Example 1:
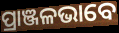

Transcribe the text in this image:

ପ୍ରାଞ୍ଜଳଭାବେ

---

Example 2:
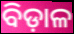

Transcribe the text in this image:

ବିଡ଼ାଳ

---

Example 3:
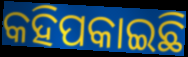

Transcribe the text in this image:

କହିପକାଇଛି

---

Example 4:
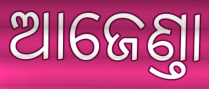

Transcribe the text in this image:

ଆଜେଣ୍ତା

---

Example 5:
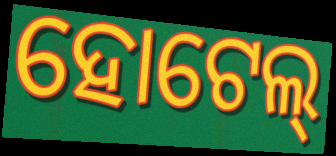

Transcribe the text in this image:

ହୋଟେଲ୍